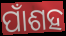
ପାଁଶହ